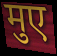
मुए